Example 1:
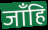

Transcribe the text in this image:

जाँहि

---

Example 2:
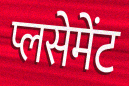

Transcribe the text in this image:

प्लसेमेंट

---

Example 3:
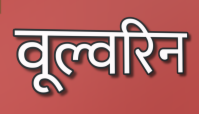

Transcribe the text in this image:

वूल्वरिन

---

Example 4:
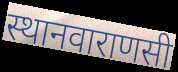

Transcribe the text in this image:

स्थानवाराणसी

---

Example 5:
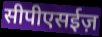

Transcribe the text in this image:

सीपीएसईज़